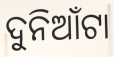
ଦୁନିଆଁଟା